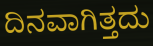
ದಿನವಾಗಿತ್ತದು